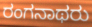
ರಂಗನಾಥರು